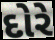
દોરે